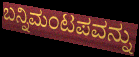
ಬನ್ನಿಮಂಟಪವನ್ನು